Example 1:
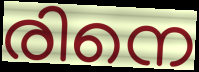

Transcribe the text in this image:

രിനെ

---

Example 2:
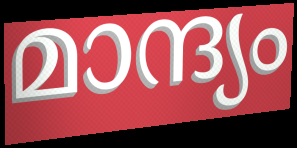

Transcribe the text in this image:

മാന്ദ്യം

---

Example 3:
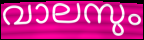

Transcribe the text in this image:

വാലസും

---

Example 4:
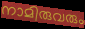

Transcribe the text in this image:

നാമിരുവരും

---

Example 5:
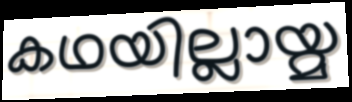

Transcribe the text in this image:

കഥയില്ലായ്മ